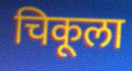
चिकूला